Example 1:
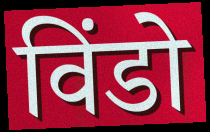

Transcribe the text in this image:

विंडो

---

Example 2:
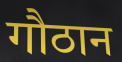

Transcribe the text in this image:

गौठान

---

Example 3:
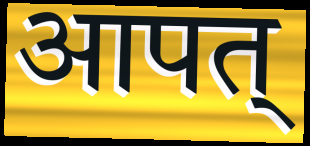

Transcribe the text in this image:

आपत्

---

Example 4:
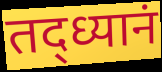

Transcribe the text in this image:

तद्ध्यानं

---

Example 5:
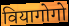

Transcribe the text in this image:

वियागोगो